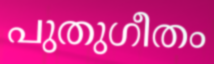
പുതുഗീതം